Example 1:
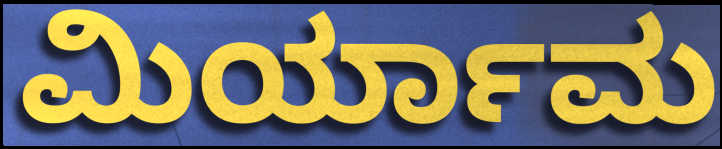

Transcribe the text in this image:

ಮಿರ್ಯಾಮ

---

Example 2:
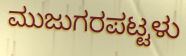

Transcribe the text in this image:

ಮುಜುಗರಪಟ್ಟಳು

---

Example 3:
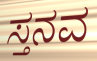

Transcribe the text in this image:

ಸ್ತನವ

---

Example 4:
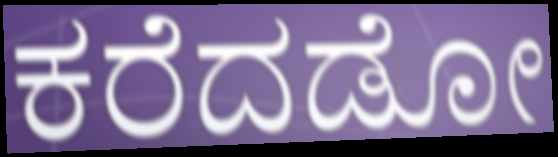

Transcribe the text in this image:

ಕರೆದಡೋ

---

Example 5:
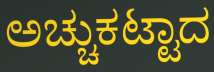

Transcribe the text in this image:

ಅಚ್ಚುಕಟ್ಟಾದ